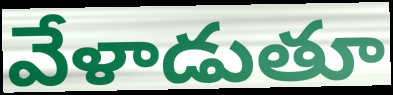
వేళాడుతూ